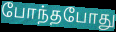
போந்தபோது